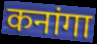
कनांगा